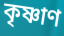
কৃষ্ণাণ